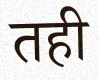
तही